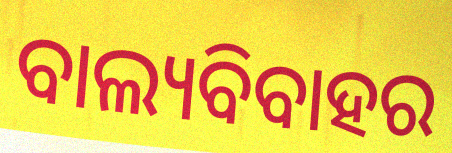
ବାଲ୍ୟବିବାହର